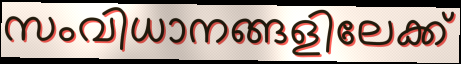
സംവിധാനങ്ങളിലേക്ക്